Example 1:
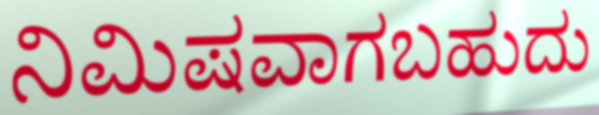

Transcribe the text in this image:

ನಿಮಿಷವಾಗಬಹುದು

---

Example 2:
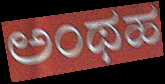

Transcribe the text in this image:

ಅಂಥಹ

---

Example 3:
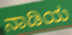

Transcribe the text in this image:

ನಾಡಿಯ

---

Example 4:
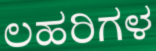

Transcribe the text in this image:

ಲಹರಿಗಳ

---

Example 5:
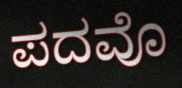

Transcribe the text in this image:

ಪದವೊ